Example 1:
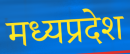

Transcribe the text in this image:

मध्यप्रदेश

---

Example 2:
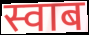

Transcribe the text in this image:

स्वाब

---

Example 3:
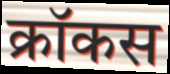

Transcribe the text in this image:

क्रॉकस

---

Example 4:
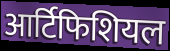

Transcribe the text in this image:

आर्टिफिशियल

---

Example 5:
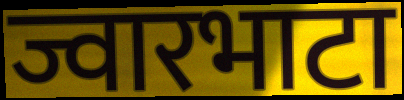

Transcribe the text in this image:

ज्वारभाटा